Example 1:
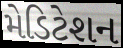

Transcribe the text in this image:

મેડિટેશન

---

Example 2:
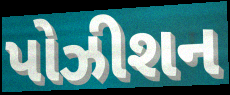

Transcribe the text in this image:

પોઝીશન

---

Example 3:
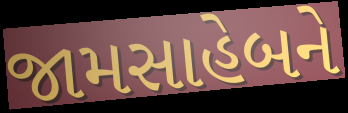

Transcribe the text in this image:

જામસાહેબને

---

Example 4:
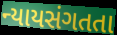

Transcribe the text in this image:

ન્યાયસંગતતા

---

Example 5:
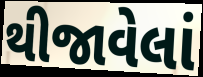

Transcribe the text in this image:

થીજાવેલાં